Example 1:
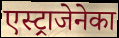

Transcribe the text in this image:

एस्ट्राजेनेका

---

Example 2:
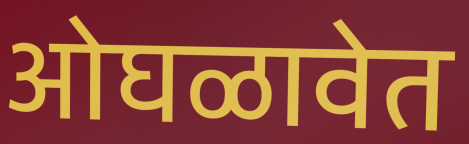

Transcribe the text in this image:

ओघळावेत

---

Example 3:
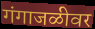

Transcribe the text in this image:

गंगाजळीवर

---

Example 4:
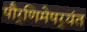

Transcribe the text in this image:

पौर्णिमेपर्यंत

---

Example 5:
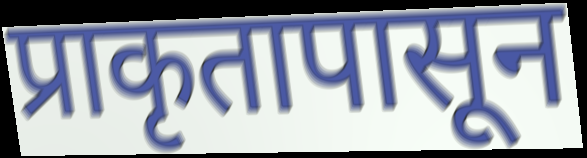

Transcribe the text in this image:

प्राकृतापासून